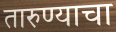
तारुण्याचा